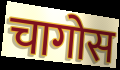
चागोस